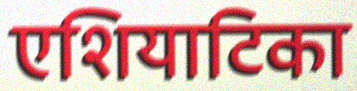
एशियाटिका